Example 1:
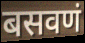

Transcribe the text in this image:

बसवणं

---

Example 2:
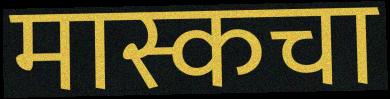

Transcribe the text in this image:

मास्कचा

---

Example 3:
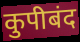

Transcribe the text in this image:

कुपीबंद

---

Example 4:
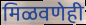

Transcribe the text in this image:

मिळवणेही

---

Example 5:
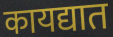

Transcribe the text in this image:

कायद्यात